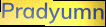
Pradyumn